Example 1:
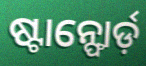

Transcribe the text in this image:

ଷ୍ଟାନ୍ଫୋର୍ଡ଼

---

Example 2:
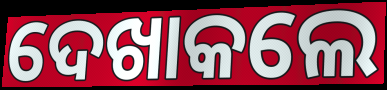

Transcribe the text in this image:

ଦେଖାକଲେ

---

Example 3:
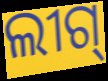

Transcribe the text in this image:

ଲୀଗ୍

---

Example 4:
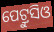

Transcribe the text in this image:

ପେଟ୍ରୁସିଓ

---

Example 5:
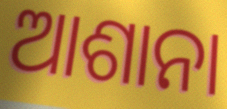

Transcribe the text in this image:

ଆଶାନା